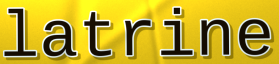
latrine